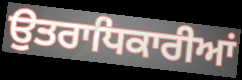
ਉਤਰਾਧਿਕਾਰੀਆਂ